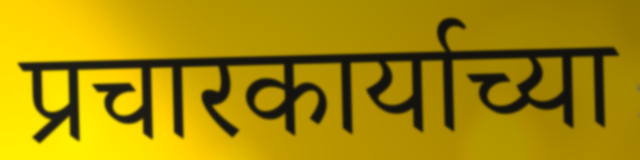
प्रचारकार्याच्या